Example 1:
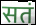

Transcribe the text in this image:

सतं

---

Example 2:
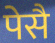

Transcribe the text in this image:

पेसै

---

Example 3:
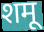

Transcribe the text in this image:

शमू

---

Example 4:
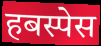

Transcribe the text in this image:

हबस्पेस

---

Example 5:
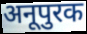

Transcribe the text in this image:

अनूपुरक